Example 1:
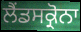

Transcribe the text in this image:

ਲੈਂਡਸਕ੍ਰੋਨਾ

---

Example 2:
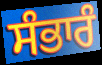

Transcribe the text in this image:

ਸੰਭਾਰੰ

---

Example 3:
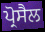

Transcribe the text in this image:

ਪ੍ਰੋਸੈਲ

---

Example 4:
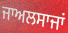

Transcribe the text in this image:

ਜਾਅਲਸਾਜਾਂ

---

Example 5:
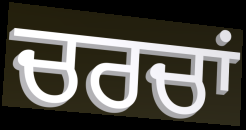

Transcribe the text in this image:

ਚਰਚਾਂ